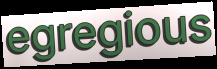
egregious